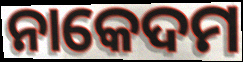
ନାକେଦମ